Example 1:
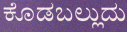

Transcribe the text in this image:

ಕೊಡಬಲ್ಲುದು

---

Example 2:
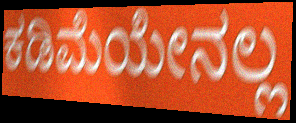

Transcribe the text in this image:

ಕಡಿಮೆಯೇನಲ್ಲ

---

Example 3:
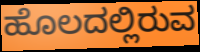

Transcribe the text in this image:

ಹೊಲದಲ್ಲಿರುವ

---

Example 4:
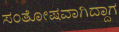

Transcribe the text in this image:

ಸಂತೋಷವಾಗಿದ್ದಾಗ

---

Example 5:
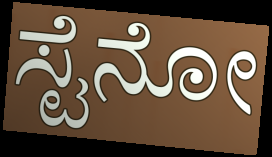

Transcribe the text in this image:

ಸ್ಟೆನೋ